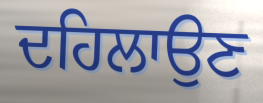
ਦਹਿਲਾਉਣ